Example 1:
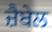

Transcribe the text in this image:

ਜ਼ੈਬੇਲ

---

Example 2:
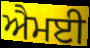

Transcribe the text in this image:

ਐਮਈ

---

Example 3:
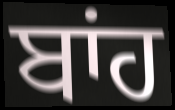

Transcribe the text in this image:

ਬਾਂਹ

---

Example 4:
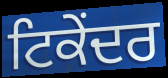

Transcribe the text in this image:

ਟਿਕੇਂਦਰ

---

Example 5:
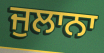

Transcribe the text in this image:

ਜੁਲਾਨਾ